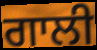
ਗਾਲੀ